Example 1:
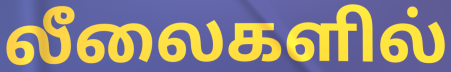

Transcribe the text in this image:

லீலைகளில்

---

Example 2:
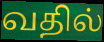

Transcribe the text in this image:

வதில்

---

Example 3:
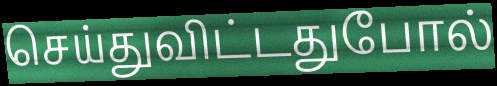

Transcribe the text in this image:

செய்துவிட்டதுபோல்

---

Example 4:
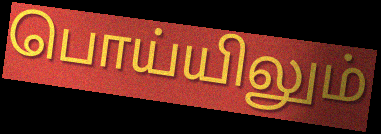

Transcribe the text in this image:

பொய்யிலும்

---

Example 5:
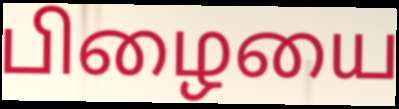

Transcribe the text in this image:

பிழையை